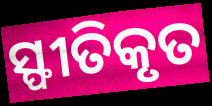
ସ୍ଫୀତିକୃତ